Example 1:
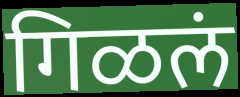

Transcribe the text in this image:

गिळलं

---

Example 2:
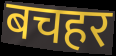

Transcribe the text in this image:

बचहर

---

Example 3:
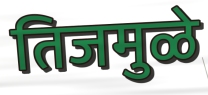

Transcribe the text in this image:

तिजमुळे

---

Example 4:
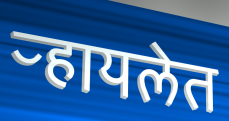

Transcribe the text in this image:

ऱ्हायलेत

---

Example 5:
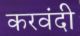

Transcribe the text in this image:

करवंदी